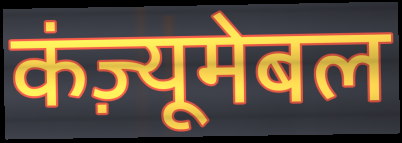
कंज़्यूमेबल